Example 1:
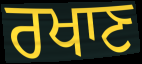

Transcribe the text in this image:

ਰਖਾਣ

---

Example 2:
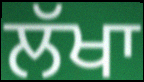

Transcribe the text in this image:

ਲੱਖਾ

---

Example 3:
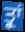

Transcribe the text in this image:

ਤ੍ਰ੍ਹਾਂ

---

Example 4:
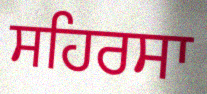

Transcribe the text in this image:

ਸਹਿਰਸਾ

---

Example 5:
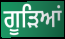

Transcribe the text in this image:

ਗੂੜਿਆਂ